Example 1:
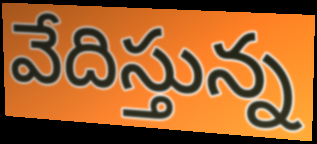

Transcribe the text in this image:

వేదిస్తున్న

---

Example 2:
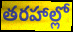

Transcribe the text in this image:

తరహాల్లో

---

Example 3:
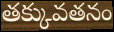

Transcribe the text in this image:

తక్కువతనం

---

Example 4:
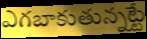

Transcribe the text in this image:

ఎగబాకుతున్నట్టే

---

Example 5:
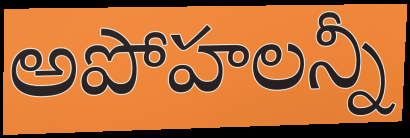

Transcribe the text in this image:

అపోహలన్నీ